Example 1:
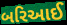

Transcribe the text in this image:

બરિઆઈ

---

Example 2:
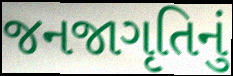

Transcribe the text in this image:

જનજાગૃતિનું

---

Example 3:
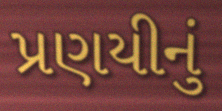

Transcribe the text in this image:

પ્રણયીનું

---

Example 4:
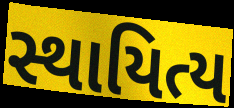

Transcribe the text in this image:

સ્થાયિત્ય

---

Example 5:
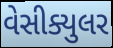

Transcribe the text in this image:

વેસીક્યુલર